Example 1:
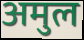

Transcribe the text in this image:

अमुल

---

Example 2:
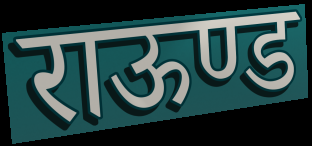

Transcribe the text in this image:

राऊण्ड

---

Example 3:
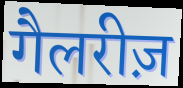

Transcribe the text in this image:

गैलरीज़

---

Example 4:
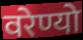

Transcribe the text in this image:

वरेण्यो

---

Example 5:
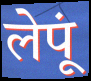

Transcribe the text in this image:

लेपूं